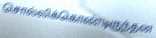
சொல்லிக்கொண்டிருந்தன